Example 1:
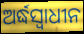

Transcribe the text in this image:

ଅର୍ଦ୍ଧସ୍ୱାଧୀନ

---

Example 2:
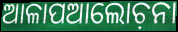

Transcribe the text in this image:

ଆଳାପଆଲୋଚ଼ନା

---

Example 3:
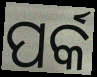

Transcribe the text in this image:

ପର୍କ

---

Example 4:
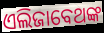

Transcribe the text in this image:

ଏଲିଜାବେଥଙ୍କ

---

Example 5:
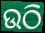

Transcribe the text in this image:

ଉଠି